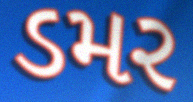
ડમર